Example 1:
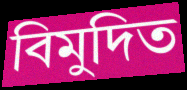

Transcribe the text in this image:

বিমুদিত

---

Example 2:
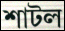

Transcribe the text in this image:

শাটল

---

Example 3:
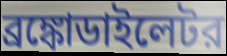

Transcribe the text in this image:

ব্রঙ্কোডাইলেটর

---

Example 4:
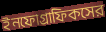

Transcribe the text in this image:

ইনফোগ্রাফিকসের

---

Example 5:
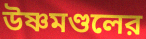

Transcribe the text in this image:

উষ্ণমণ্ডলের